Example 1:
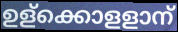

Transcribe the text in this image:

ഉള്ക്കൊളളാന്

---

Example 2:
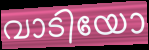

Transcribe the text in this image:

വാടിയോ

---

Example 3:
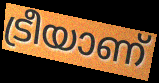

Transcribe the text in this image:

ട്രീയാണ്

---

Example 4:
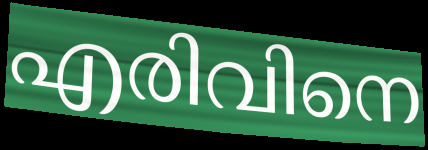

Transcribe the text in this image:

എരിവിനെ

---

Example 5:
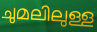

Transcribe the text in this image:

ചുമലിലുള്ള